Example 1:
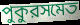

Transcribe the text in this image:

পুকুরসমেত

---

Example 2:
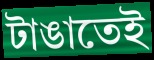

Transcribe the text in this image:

টাঙাতেই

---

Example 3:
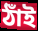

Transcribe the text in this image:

ঠাঁই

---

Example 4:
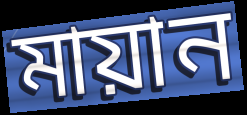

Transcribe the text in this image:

মায়ান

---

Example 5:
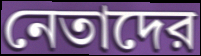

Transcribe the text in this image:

নেতাদের